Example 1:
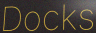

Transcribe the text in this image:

Docks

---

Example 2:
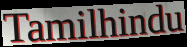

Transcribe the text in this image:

Tamilhindu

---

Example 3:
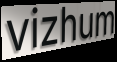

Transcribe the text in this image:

vizhum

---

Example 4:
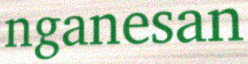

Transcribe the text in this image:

nganesan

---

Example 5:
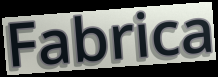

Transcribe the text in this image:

Fabrica